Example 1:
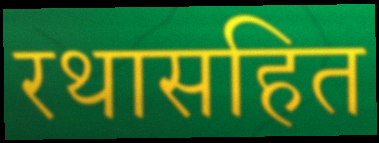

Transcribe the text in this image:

रथासहित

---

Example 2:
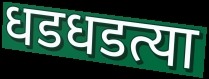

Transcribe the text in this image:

धडधडत्या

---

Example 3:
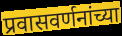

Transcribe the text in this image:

प्रवासवर्णनांच्या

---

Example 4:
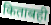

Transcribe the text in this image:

किताबही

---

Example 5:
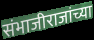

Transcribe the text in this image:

संभाजीराजांच्या